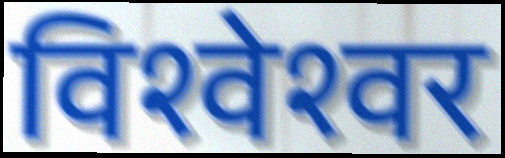
विश्वेश्वर